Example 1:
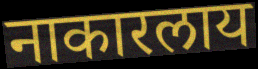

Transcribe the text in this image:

नाकारलाय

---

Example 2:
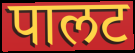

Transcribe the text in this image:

पालट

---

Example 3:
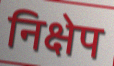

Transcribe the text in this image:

निक्षेप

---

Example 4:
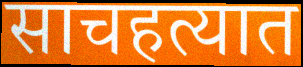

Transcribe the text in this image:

साचहत्यात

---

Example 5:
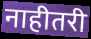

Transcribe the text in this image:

नाहीतरी